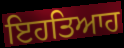
ਇਹਤਿਆਹ